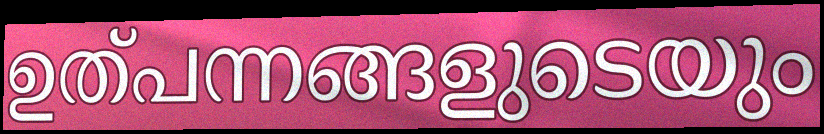
ഉത്പന്നങ്ങളുടെയും